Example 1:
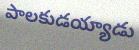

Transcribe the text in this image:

పాలకుడయ్యాడు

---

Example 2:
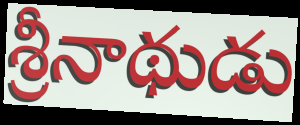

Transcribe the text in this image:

శ్రీనాథుడు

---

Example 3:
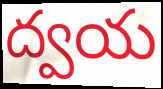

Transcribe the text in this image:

ద్వయ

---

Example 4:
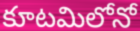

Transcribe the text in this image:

కూటమిలోనో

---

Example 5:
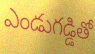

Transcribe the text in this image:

ఎండుగడ్డితో